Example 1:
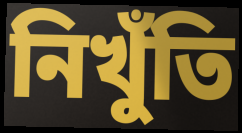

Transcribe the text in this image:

নিখুঁতি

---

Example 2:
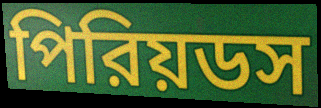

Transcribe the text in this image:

পিরিয়ডস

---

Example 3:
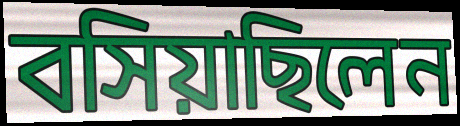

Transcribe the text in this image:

বসিয়াছিলেন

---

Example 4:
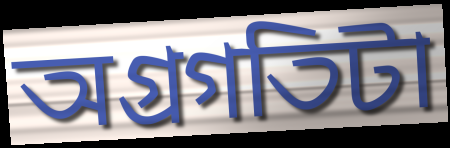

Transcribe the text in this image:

অগ্রগতিটা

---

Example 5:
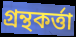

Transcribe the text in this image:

গ্রন্থকর্ত্তা